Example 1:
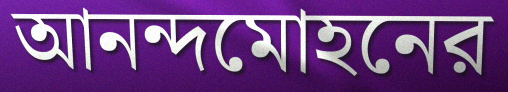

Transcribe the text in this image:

আনন্দমোহনের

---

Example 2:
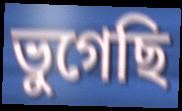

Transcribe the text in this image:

ভুগেছি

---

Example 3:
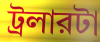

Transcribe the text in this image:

ট্রলারটা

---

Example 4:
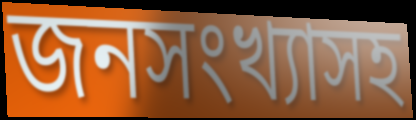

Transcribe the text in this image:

জনসংখ্যাসহ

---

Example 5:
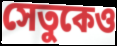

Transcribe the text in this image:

সেতুকেও